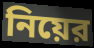
নিয়ের